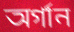
অর্গান